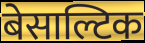
बेसाल्टिक